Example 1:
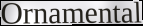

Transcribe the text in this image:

Ornamental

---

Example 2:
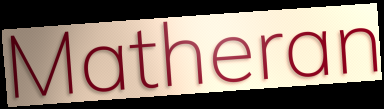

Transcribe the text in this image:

Matheran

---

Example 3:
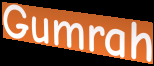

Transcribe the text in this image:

Gumrah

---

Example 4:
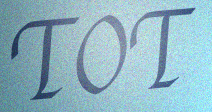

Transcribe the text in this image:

TOT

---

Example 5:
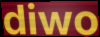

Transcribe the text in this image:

diwo